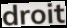
droit